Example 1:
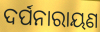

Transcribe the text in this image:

ଦର୍ପନାରାୟଣ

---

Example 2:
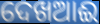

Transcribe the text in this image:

ଦେଖଆଈ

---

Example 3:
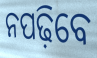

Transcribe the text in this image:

ନପଢ଼ିବେ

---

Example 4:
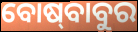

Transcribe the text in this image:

ବୋଷ୍‍ବାବୁର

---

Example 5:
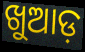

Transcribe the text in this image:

ଖୁଆଡ଼